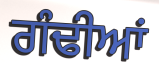
ਗੰਢੀਆਂ